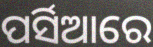
ପର୍ସିଆରେ